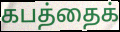
கபத்தைக்